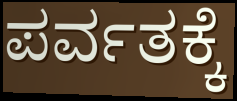
ಪರ್ವತಕ್ಕೆ